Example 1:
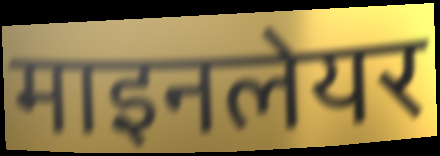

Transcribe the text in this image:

माइनलेयर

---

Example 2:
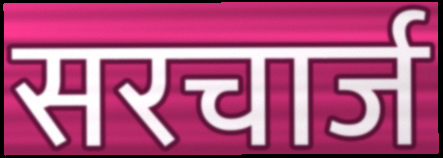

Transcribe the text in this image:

सरचार्ज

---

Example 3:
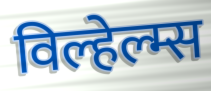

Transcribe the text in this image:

विल्हेल्म्स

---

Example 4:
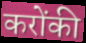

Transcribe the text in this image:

करोंकी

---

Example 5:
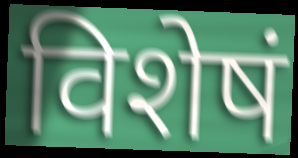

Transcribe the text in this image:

विशेषं